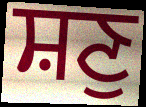
ਸ਼ਣੁ